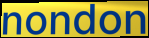
nondon